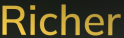
Richer